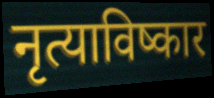
नृत्याविष्कार